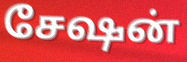
சேஷன்